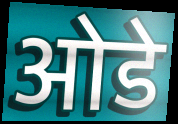
ओडे